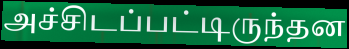
அச்சிடப்பட்டிருந்தன